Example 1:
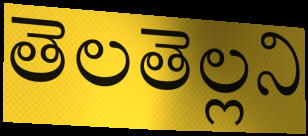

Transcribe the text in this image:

తెలతెల్లని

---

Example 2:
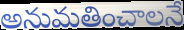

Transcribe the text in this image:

అనుమతించాలనే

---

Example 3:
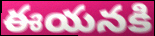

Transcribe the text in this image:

ఈయనకి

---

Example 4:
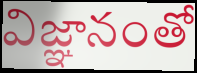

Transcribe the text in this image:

విజ్ఞానంతో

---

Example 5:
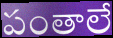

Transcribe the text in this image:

పంతాలే